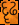
દૄઢ